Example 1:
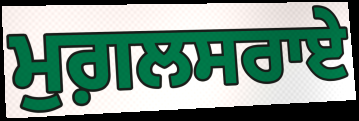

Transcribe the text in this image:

ਮੁਗ਼ਲਸਰਾਏ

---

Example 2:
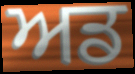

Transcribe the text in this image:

ਅਡ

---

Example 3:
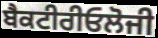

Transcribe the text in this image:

ਬੈਕਟੀਰੀਓਲੋਜੀ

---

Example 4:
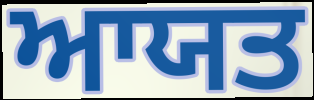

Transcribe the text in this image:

ਆਯਤ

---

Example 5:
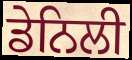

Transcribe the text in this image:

ਡੇਨਿਲੀ